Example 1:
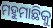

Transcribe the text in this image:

ମହୁମାଛିକୁ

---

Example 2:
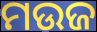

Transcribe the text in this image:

ମଉଜ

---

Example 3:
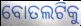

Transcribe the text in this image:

ବୋତଲଟିକୁ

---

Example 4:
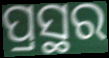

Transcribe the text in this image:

ପ୍ରସ୍ଥର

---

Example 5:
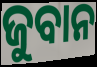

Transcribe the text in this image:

ଜୁବାନ